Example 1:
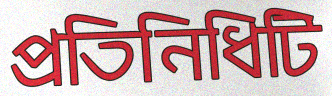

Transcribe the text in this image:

প্রতিনিধিটি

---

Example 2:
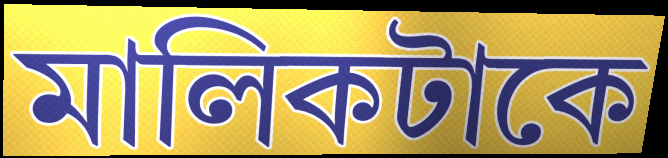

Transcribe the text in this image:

মালিকটাকে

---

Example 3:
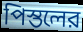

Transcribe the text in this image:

পিস্তলের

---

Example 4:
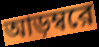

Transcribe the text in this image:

আড়ম্বরে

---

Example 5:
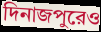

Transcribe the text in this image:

দিনাজপুরেও